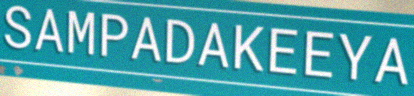
SAMPADAKEEYA